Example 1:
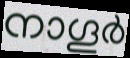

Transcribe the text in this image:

നാഗൂർ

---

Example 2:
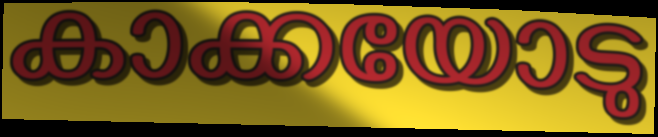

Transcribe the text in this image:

കാക്കയോടു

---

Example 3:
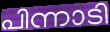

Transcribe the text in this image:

പിന്നാടി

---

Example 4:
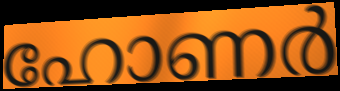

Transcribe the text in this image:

ഹോണർ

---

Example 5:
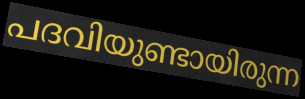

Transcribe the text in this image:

പദവിയുണ്ടായിരുന്ന